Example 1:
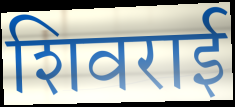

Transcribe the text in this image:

शिवराई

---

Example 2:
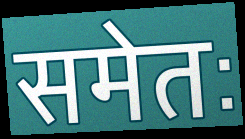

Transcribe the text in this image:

समेतः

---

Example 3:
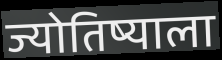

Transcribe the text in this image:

ज्योतिष्याला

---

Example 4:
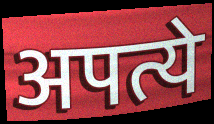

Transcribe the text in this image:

अपत्ये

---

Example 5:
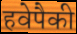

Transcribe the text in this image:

हवेपैकी